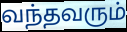
வந்தவரும்